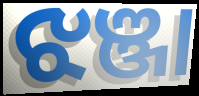
ଝଞ୍ଜା